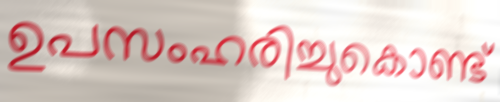
ഉപസംഹരിച്ചുകൊണ്ട്